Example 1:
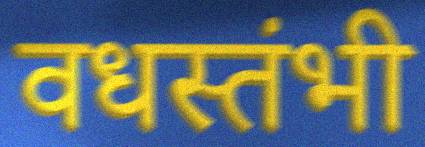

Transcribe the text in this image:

वधस्तंभी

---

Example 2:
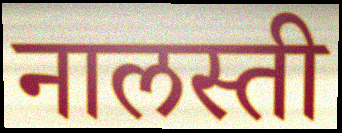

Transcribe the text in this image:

नालस्ती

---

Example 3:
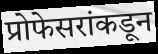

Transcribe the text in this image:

प्रोफेसरांकडून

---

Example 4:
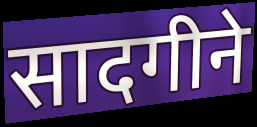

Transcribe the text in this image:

सादगीने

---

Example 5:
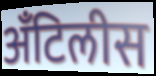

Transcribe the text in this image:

अँटिलीस